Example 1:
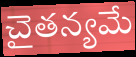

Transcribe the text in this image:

చైతన్యమే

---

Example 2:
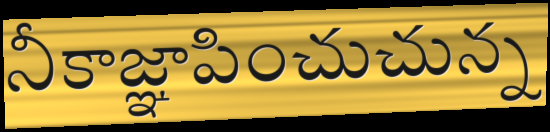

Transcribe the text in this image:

నీకాజ్ఞాపించుచున్న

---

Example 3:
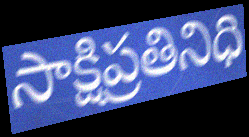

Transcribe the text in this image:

సాక్షిప్రతినిధి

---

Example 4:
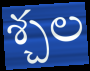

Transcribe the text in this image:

శ్చల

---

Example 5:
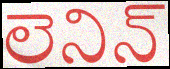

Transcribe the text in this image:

లెనిన్